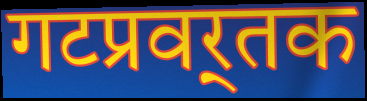
गटप्रवर्तक